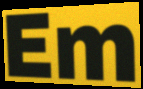
Em